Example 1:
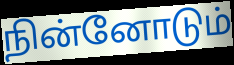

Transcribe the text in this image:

நின்னோடும்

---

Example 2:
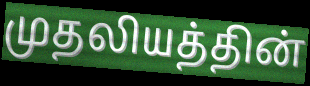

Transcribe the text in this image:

முதலியத்தின்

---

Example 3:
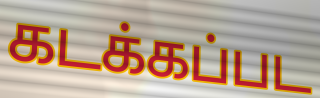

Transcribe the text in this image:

கடக்கப்பட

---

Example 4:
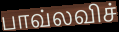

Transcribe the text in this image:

பாவ்லவிச்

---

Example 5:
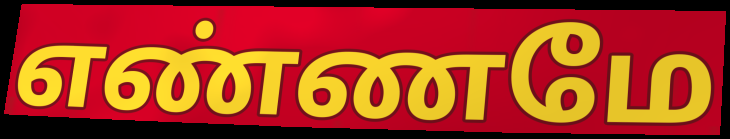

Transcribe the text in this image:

எண்ணமே